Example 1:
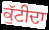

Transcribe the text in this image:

ਕੁੱਟੀਦਾ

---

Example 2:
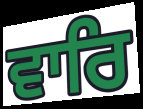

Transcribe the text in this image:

ਵਾਰਿ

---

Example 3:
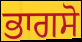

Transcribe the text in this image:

ਭਾਗਸੋ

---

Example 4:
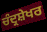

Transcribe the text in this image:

ਚੰਦ੍ਰਸ਼ੇਖਰ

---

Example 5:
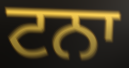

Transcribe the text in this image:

ਟਨਾ